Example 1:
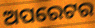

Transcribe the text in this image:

ଅପରେଟର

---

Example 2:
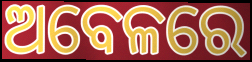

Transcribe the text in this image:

ଅବେଳରେ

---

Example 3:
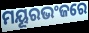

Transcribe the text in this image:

ମୟୂରଭଂଜରେ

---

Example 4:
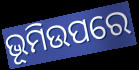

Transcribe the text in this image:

ଭୂମିଉପରେ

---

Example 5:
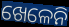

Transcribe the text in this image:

ଖେଳେନି